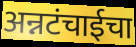
अन्नटंचाईचा